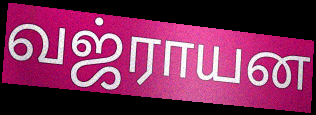
வஜ்ராயன